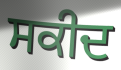
ਸਕੀਦ